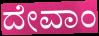
ದೇವಾಂ